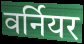
वर्नियर